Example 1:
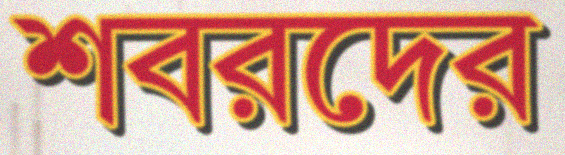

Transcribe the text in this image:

শবরদের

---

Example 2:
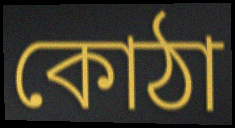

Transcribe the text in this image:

কোঠা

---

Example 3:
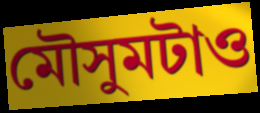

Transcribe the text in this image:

মৌসুমটাও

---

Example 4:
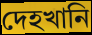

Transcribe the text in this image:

দেহখানি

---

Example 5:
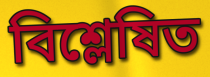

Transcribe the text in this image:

বিশ্লেষিত